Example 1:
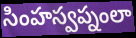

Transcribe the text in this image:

సింహస్వప్నంలా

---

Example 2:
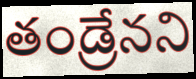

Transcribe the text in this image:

తండ్రేనని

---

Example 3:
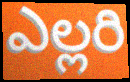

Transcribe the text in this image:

ఎల్లరి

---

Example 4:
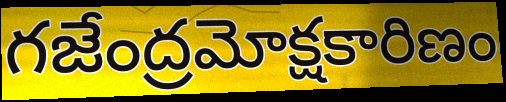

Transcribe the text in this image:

గజేంద్రమోక్షకారిణం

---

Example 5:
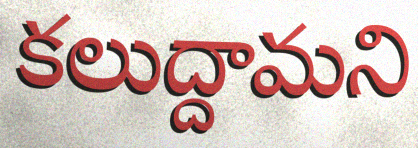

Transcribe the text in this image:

కలుద్దామని